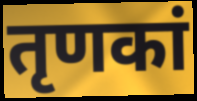
तृणकां